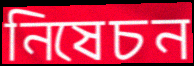
নিষেচন